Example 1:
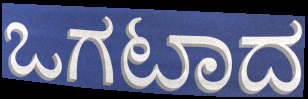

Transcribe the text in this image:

ಒಗಟಾದ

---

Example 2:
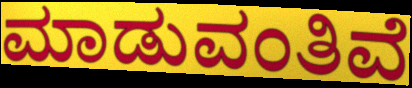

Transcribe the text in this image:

ಮಾಡುವಂತಿವೆ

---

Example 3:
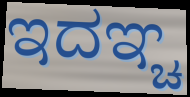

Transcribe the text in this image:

ಇದಞ್ಚ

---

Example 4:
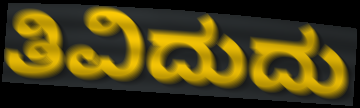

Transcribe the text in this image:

ತಿವಿದುದು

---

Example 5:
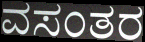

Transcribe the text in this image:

ವಸಂತರ